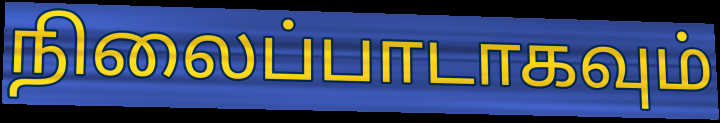
நிலைப்பாடாகவும்